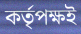
কৰ্তৃপক্ষই